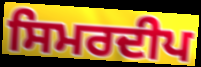
ਸਿਮਰਦੀਪ